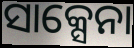
ସାକ୍ସେନା